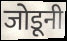
जोडूनी